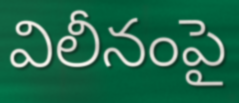
విలీనంపై